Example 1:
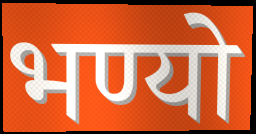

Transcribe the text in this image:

भण्यो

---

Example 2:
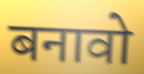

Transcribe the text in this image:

बनावो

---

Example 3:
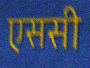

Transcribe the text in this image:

एससी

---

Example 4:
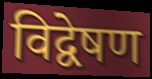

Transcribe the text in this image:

विद्वेषण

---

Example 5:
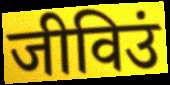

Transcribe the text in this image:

जीविउं